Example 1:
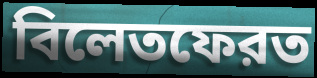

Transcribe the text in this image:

বিলেতফেরত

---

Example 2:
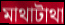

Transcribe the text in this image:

মাথাটাথা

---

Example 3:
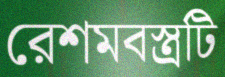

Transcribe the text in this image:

রেশমবস্ত্রটি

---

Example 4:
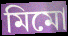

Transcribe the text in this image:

মিমো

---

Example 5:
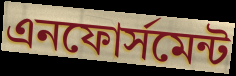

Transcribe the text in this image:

এনফোর্সমেন্ট